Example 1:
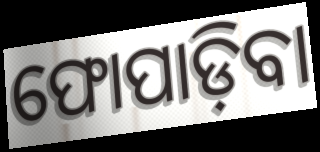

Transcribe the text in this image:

ଫୋପାଡ଼ିବା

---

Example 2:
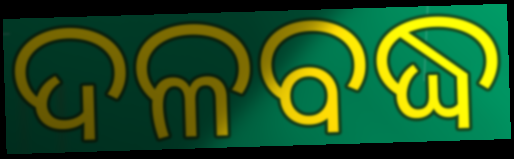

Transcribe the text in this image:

ଦଳବଦ୍ଧ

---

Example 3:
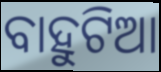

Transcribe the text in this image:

ବାହୁଟିଆ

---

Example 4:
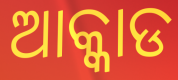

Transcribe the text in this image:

ଆକ୍କାଡ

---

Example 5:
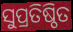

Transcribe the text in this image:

ସୁପ୍ରତିଷ୍ଠିତ